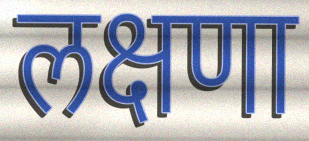
लक्षणा